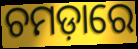
ଚମଡ଼ାରେ